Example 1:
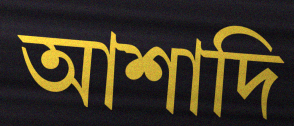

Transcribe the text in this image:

আশাদি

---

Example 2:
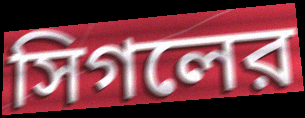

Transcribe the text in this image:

সিগলের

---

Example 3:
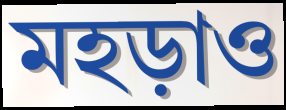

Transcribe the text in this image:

মহড়াও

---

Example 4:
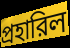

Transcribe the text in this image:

প্রহারিল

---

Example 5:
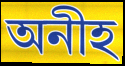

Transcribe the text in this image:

অনীহ